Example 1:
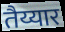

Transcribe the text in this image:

तैय्यार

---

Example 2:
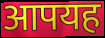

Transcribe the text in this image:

आपयह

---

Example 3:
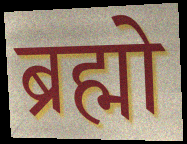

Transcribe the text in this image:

ब्रह्मो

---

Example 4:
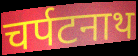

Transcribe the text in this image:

चर्पटनाथ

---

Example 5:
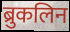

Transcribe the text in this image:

ब्रुकलिन